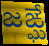
జఙ్ఘే